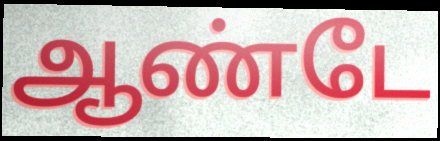
ஆண்டே